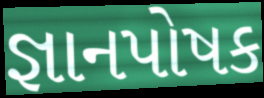
જ્ઞાનપોષક